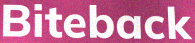
Biteback